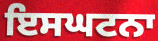
ਇਸਘਟਨਾ